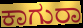
ಕಾಗುರಾ